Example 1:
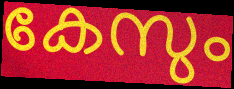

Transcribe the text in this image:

കേസും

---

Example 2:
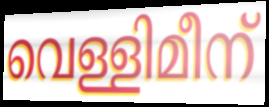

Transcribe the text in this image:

വെള്ളിമീന്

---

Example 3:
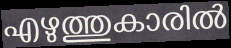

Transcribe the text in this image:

എഴുത്തുകാരിൽ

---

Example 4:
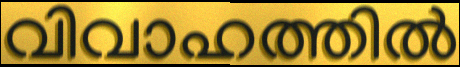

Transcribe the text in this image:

വിവാഹത്തിൽ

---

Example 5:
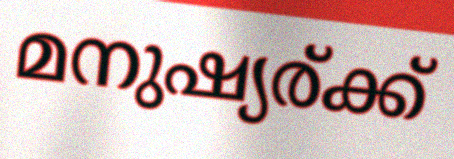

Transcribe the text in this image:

മനുഷ്യര്ക്ക്